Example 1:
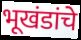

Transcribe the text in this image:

भूखंडांचे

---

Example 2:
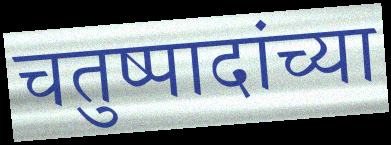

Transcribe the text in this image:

चतुष्पादांच्या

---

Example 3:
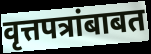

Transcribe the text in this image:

वृत्तपत्रांबाबत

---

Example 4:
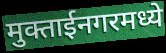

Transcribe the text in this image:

मुक्ताईनगरमध्ये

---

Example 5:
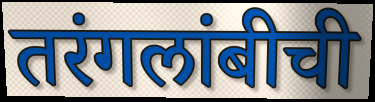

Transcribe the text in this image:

तरंगलांबीची